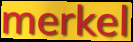
merkel